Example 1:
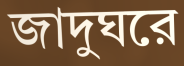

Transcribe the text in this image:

জাদুঘরে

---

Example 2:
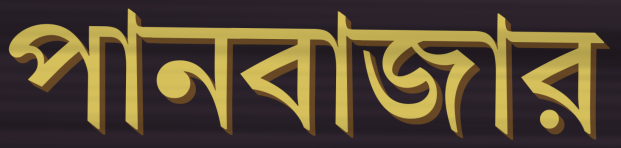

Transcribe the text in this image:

পানবাজার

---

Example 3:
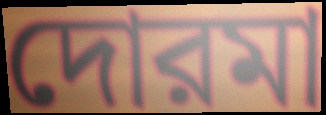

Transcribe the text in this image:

দোরমা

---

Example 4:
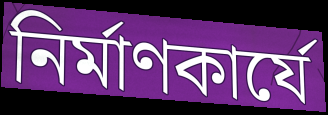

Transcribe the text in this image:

নির্মাণকার্যে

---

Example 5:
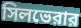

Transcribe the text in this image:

সিলভেরার